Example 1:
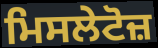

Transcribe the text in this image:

ਮਿਸਲੇਟੋਜ਼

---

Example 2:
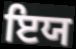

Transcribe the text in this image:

ਇਯ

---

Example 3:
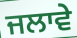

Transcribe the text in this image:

ਜਲਾਵੇ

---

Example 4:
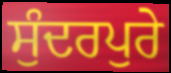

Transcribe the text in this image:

ਸੁੰਦਰਪੁਰੇ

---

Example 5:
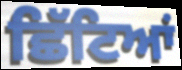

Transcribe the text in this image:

ਛਿੱਟਿਆਂ